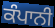
ਕੰਪਾਨੀ